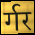
र्गर